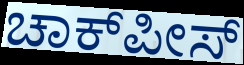
ಚಾಕ್‌ಪೀಸ್